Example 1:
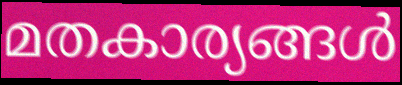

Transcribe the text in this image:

മതകാര്യങ്ങൾ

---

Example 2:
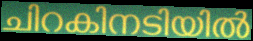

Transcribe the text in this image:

ചിറകിനടിയിൽ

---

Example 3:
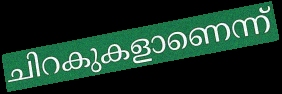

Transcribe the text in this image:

ചിറകുകളാണെന്ന്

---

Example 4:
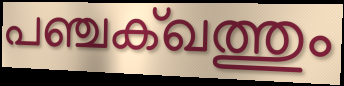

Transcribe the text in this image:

പഞ്ചക്ഖത്തും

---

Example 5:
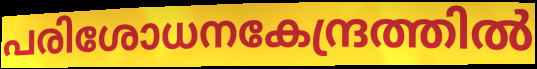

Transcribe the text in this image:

പരിശോധനകേന്ദ്രത്തിൽ